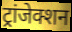
ट्रांजेक्शन